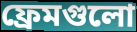
ফ্রেমগুলো